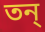
তন্